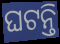
ଘଟନ୍ତି